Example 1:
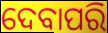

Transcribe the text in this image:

ଦେବାପରି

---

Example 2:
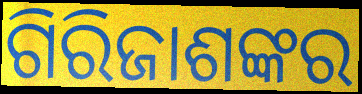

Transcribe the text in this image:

ଗିରିଜାଶଙ୍କର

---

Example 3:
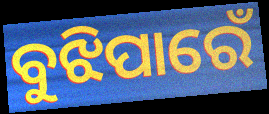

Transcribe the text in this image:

ବୁଝିପାରେଁ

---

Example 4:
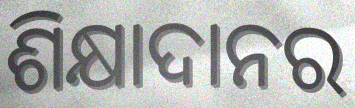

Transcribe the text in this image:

ଶିକ୍ଷାଦାନର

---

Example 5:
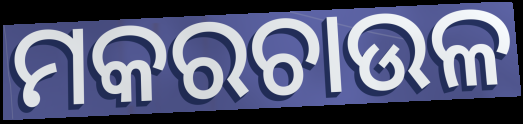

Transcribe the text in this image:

ମକରଚାଉଳ